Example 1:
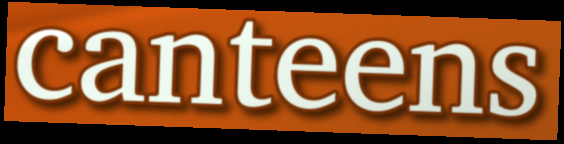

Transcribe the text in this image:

canteens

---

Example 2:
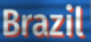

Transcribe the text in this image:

Brazil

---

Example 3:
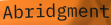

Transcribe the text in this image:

Abridgment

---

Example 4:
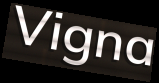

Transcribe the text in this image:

Vigna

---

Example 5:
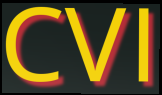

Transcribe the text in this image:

CVI